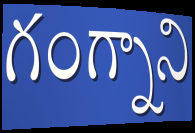
గంగ్నాని